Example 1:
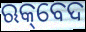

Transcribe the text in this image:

ଋକ୍‌ବେଦ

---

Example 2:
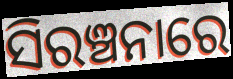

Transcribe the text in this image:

ସିରଞ୍ଚନାରେ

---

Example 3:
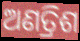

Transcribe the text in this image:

ଅଣତ୍ରିଶ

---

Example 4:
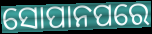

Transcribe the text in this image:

ସୋପାନପରେ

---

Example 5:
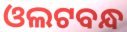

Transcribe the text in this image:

ଓଲଟବନ୍ଧ